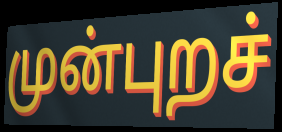
முன்புறச்